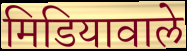
मिडियावाले